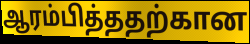
ஆரம்பித்ததற்கான